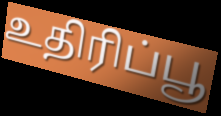
உதிரிப்பூ